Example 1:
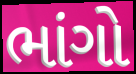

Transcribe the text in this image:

ભાંગો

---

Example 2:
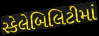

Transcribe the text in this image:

સ્કેલેબિલિટીમાં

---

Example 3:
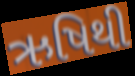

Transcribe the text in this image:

ઋષિથી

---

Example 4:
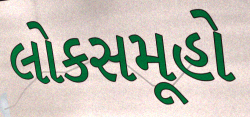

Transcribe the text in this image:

લોકસમૂહો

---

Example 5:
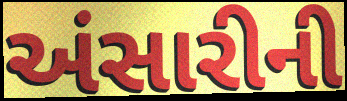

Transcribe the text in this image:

અંસારીની